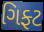
ગિફ્ટ